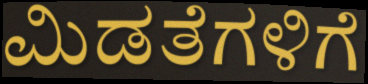
ಮಿಡತೆಗಳಿಗೆ